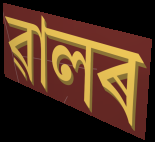
ৱালৰ